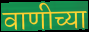
वाणीच्या